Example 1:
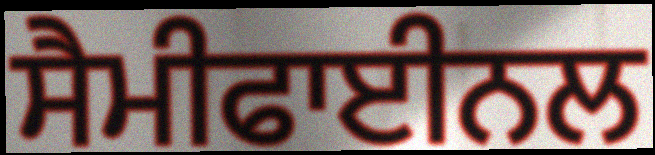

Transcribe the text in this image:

ਸੈਮੀਫਾਈਨਲ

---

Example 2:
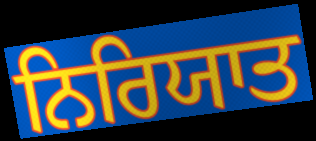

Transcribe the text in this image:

ਨਿਰਿਯਾਤ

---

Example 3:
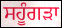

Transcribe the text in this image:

ਸਹੂੰਗੜਾ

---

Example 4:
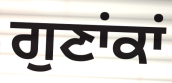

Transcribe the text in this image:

ਗੁਣਾਂਕਾਂ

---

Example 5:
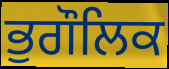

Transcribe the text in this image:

ਭੁਗੌਲਿਕ